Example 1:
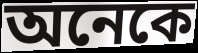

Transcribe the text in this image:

অনেকে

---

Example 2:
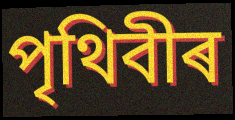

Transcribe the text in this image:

পৃথিবীৰ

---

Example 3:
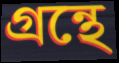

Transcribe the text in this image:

গ্ৰন্থে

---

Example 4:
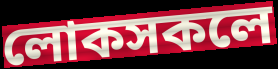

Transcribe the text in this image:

লোকসকলে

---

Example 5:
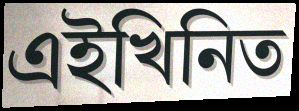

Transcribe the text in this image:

এইখিনিত